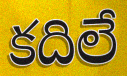
కదిలే